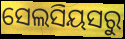
ସେଲସିୟସରୁ